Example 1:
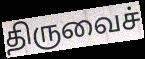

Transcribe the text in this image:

திருவைச்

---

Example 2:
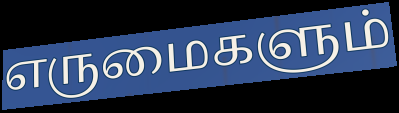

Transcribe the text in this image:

எருமைகளும்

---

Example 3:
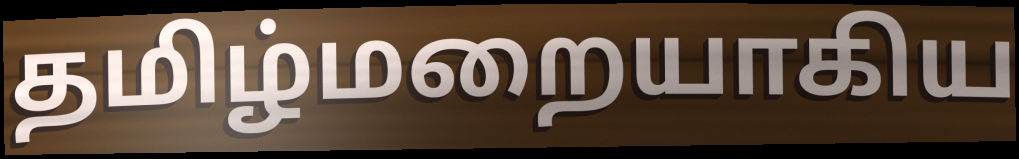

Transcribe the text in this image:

தமிழ்மறையாகிய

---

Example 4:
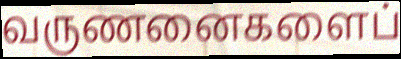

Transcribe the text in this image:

வருணனைகளைப்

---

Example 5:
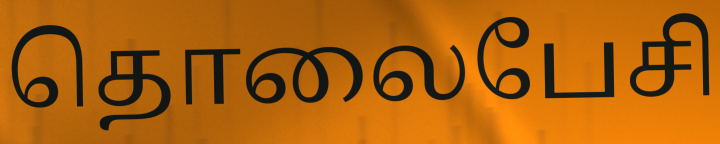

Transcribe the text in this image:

தொலைபேசி